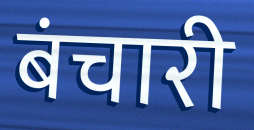
बंचारी